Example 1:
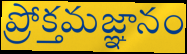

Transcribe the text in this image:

ప్రోక్తమజ్ఞానం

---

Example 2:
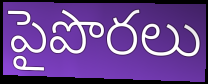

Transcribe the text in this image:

పైపొరలు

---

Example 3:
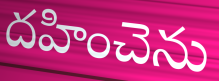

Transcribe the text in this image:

దహించెను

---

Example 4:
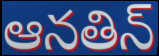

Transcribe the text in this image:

ఆనతిన్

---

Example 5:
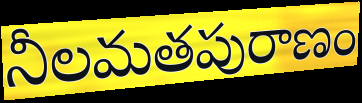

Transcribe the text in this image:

నీలమతపురాణం